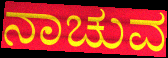
ನಾಚುವ